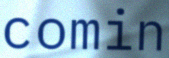
comin